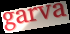
garva